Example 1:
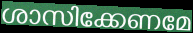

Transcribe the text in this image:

ശാസിക്കേണമേ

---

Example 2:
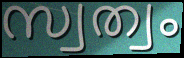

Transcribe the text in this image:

സ്വത്വം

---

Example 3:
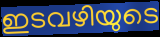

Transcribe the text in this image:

ഇടവഴിയുടെ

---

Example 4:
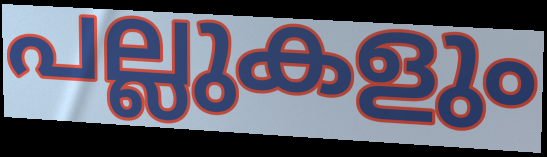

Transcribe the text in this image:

പല്ലുകളും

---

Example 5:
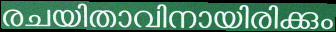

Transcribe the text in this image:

രചയിതാവിനായിരിക്കും